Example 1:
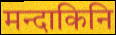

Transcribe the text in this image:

मन्दाकिनि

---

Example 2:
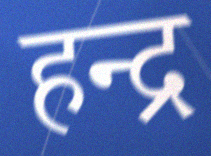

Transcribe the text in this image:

हन्द्र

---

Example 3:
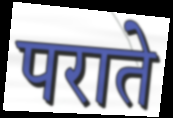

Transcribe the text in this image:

पराते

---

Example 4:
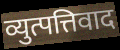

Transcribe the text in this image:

व्युत्पत्तिवाद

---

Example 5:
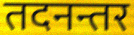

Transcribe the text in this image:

तदनन्तर